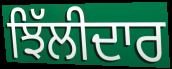
ਝਿੱਲੀਦਾਰ